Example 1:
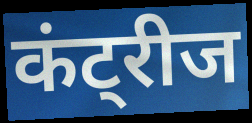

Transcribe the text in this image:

कंट्रीज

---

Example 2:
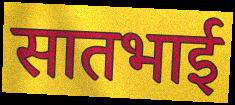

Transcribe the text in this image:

सातभाई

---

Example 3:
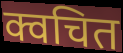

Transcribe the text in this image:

क्वचित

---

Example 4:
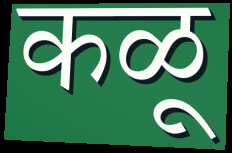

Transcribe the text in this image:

कळू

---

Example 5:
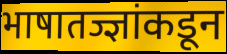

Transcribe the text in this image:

भाषातज्ज्ञांकडून